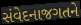
સંવેદનાજગતને